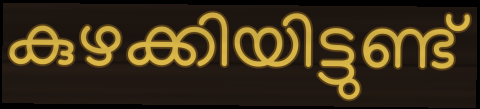
കുഴക്കിയിട്ടുണ്ട്